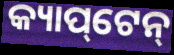
କ୍ୟାପ୍‌ଟେନ୍